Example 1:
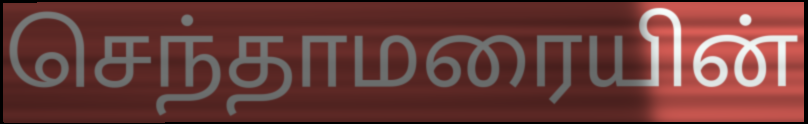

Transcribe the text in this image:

செந்தாமரையின்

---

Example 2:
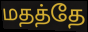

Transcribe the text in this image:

மதத்தே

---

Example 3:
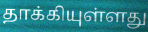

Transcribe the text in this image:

தாக்கியுள்ளது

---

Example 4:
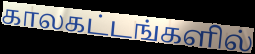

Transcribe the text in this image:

காலகட்டங்களில்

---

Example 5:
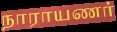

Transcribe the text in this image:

நாராயணர்